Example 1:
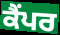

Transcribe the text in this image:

ਕੈਂਪਰ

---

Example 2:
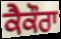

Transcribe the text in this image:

ਕੈਕੌਰਾ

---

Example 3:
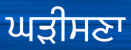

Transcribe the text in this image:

ਘੜੀਸਣਾ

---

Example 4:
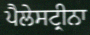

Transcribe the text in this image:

ਪੈਲੇਸਟ੍ਰੀਨਾ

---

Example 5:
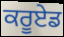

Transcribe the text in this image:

ਕਰੂਏਡ